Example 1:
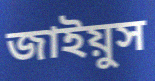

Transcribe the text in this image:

জাইয়ুস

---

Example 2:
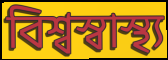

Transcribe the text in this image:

বিশ্বস্বাস্থ্য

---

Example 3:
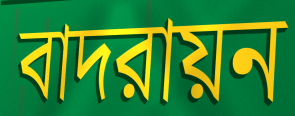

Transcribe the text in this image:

বাদরায়ন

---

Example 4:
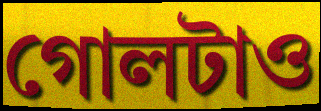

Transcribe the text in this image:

গোলটাও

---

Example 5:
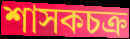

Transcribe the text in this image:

শাসকচক্র